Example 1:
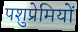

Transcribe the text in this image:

पशुप्रेमियों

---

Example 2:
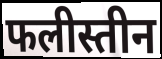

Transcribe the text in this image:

फलीस्तीन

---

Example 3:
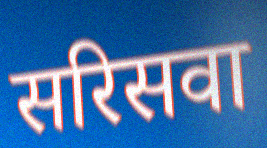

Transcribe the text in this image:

सरिसवा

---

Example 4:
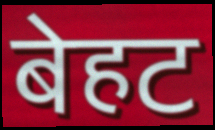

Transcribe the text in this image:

बेहट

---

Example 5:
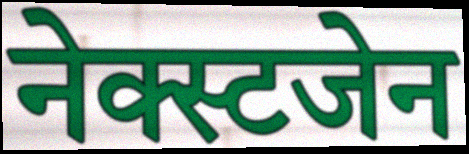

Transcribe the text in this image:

नेक्स्टजेन